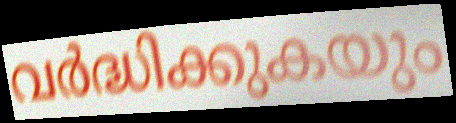
വർദ്ധിക്കുകയും